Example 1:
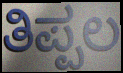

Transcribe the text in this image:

ತಿಪ್ಪಲ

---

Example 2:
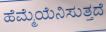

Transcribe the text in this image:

ಹೆಮ್ಮೆಯೆನಿಸುತ್ತದೆ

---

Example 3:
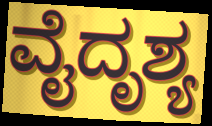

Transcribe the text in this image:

ವೈದೃಶ್ಯ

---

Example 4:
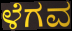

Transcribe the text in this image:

ಳೆಗವ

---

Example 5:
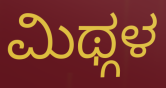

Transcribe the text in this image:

ಮಿಥ್ಗಳ